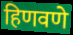
हिणवणे